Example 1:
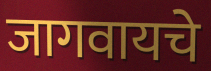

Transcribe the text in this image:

जागवायचे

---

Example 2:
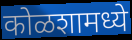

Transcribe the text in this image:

कोळशामध्ये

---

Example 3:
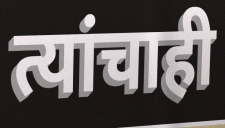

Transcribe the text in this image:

त्यांचाही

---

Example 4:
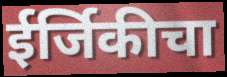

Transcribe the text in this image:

ईर्जिकीचा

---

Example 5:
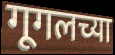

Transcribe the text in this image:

गूगलच्या